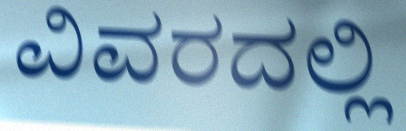
ವಿವರದಲ್ಲಿ